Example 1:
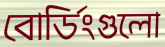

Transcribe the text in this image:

বোর্ডিংগুলো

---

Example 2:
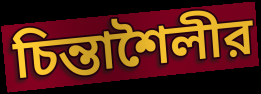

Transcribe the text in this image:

চিন্তাশৈলীর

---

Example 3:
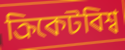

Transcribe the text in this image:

ক্রিকেটবিশ্ব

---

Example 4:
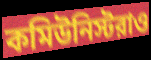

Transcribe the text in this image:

কমিউনিস্টরাও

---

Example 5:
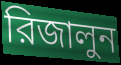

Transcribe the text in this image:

রিজালুন